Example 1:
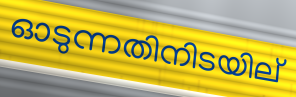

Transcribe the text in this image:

ഓടുന്നതിനിടയില്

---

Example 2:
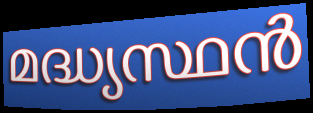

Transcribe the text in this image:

മദ്ധ്യസ്ഥൻ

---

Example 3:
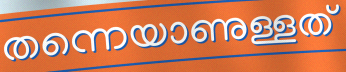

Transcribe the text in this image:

തന്നെയാണുള്ളത്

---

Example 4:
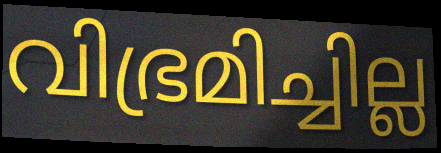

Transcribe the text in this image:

വിഭ്രമിച്ചില്ല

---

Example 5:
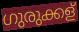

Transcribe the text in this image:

ഗുരുക്കള്